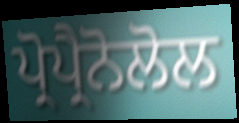
ਪ੍ਰੋਪ੍ਰੈਨੋਲੋਲ